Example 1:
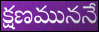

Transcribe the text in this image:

క్షణముననే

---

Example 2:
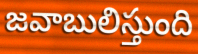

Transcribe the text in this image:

జవాబులిస్తుంది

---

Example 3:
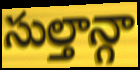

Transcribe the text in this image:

సుల్తాన్గా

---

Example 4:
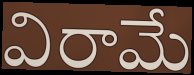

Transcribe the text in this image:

విరామే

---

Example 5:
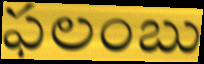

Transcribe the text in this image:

ఫలంబు